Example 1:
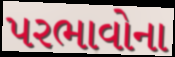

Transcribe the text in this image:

પરભાવોના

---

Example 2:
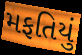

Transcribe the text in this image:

મફતિયું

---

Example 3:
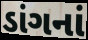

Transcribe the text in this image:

ડાંગનાં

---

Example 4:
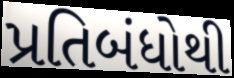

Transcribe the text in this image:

પ્રતિબંધોથી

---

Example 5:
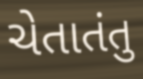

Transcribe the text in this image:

ચેતાતંતુ